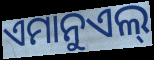
ଏମାନୁଏଲ୍